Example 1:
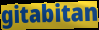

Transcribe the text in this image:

gitabitan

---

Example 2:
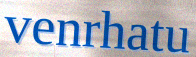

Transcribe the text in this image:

venrhatu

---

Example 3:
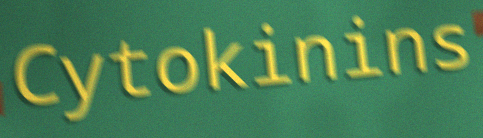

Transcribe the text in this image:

Cytokinins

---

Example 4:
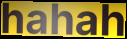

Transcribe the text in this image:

hahah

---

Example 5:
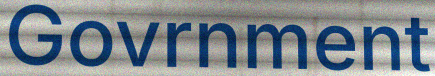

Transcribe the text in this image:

Govrnment